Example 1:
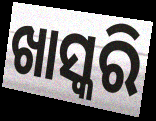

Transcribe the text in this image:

ଖାସ୍କରି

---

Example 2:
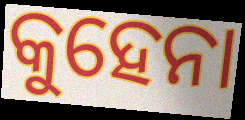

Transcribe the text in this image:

କୁହେନା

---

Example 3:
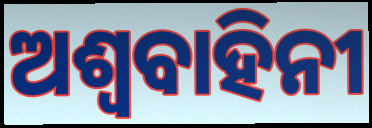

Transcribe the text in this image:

ଅଶ୍ୱବାହିନୀ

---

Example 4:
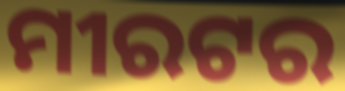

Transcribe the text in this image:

ମୀରଟର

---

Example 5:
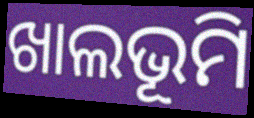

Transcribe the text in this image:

ଖାଲଭୂମି